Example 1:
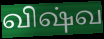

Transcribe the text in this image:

விஷ்வ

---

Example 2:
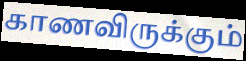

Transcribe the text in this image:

காணவிருக்கும்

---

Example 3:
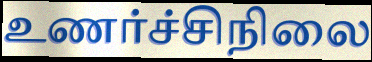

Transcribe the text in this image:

உணர்ச்சிநிலை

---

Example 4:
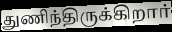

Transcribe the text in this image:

துணிந்திருக்கிறார்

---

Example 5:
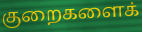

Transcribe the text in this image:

குறைகளைக்